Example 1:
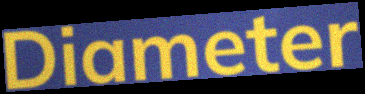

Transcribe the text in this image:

Diameter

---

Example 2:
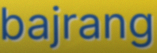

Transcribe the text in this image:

bajrang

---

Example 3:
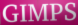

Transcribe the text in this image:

GIMPS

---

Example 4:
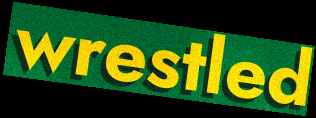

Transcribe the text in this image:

wrestled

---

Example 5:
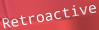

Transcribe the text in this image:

Retroactive